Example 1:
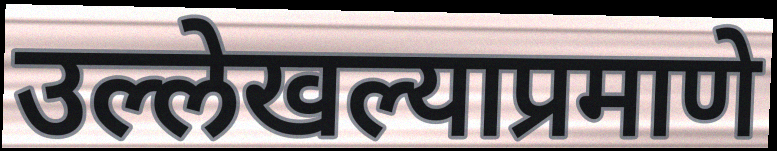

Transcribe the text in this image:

उल्लेखल्याप्रमाणे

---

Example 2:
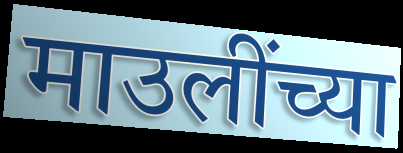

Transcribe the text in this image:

माउलींच्या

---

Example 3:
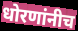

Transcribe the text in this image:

धोरणांनीच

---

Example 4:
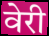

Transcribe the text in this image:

वेरी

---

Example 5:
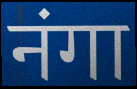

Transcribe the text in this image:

नंगा